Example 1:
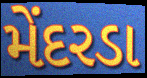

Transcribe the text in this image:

મેંદરડા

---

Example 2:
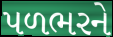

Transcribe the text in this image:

પળભરને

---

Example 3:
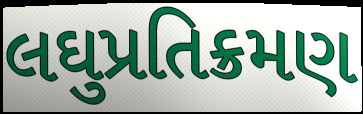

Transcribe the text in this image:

લઘુપ્રતિક્રમણ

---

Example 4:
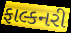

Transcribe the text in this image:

ફાલ્કનરી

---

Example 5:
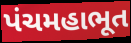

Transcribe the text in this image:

પંચમહાભૂત